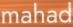
mahad